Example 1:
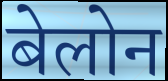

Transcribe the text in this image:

बेलोन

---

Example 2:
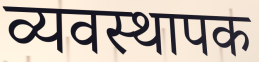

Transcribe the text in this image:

व्यवस्थापक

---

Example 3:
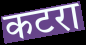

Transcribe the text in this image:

कटरा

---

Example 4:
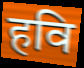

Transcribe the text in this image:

हवि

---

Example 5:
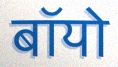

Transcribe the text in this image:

बॉयो